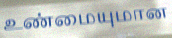
உண்மையுமான